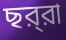
ছর্‌রা